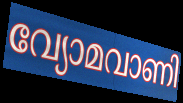
വ്യോമവാണി